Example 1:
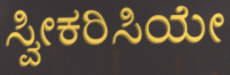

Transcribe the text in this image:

ಸ್ವೀಕರಿಸಿಯೇ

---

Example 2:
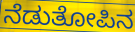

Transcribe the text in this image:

ನೆಡುತೋಪಿನ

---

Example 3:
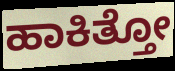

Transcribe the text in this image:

ಹಾಕಿತ್ತೋ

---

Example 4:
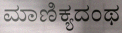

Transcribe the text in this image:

ಮಾಣಿಕ್ಯದಂಥ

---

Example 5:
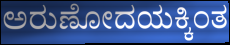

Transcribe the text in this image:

ಅರುಣೋದಯಕ್ಕಿಂತ